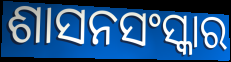
ଶାସନସଂସ୍କାର